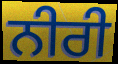
ਨੀਰੀ